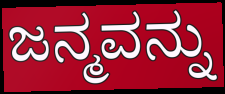
ಜನ್ಮವನ್ನು